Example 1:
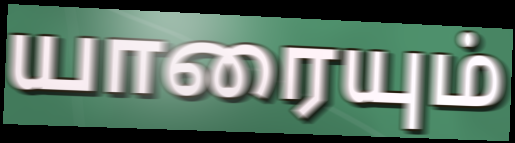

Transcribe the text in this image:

யாரையும்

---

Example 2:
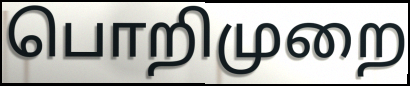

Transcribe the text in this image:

பொறிமுறை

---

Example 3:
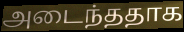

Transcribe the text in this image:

அடைந்ததாக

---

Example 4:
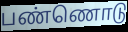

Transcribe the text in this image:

பண்ணொடு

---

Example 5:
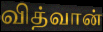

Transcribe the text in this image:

வித்வான்